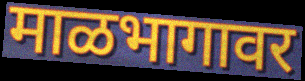
माळभागावर